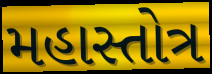
મહાસ્તોત્ર